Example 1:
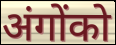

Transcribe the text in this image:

अंगोंको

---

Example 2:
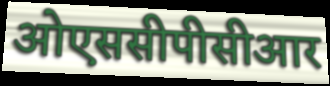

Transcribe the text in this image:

ओएससीपीसीआर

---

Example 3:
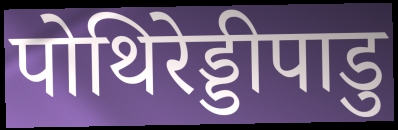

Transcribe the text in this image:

पोथिरेड्डीपाडु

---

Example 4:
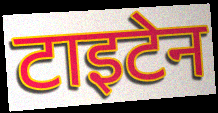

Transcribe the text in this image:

टाइटेन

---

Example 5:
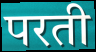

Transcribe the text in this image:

परती